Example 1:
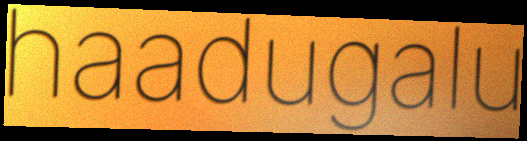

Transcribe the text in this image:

haadugalu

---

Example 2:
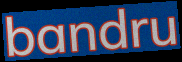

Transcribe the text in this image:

bandru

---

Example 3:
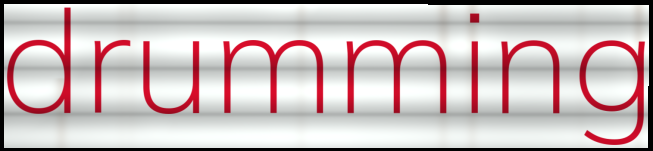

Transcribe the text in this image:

drumming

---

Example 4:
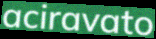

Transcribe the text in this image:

aciravato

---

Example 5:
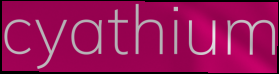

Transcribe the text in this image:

cyathium